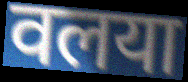
वलया